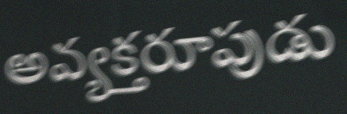
అవ్యక్తరూపుడు